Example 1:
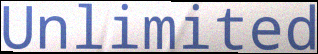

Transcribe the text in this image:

Unlimited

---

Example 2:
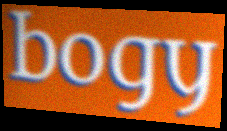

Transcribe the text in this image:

bogy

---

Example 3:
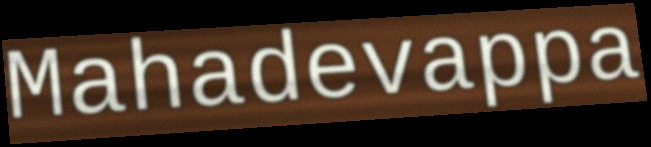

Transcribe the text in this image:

Mahadevappa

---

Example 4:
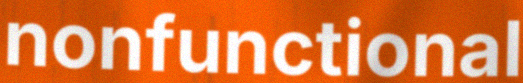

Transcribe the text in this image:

nonfunctional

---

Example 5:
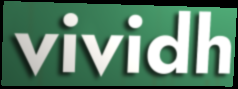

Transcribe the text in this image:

vividh